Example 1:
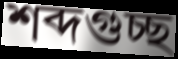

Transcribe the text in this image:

শব্দগুচ্ছ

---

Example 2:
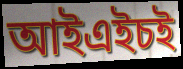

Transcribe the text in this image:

আইএইচই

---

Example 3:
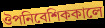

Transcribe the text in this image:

ঔপনিবেশিককালে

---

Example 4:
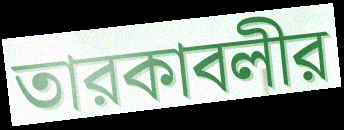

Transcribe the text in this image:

তারকাবলীর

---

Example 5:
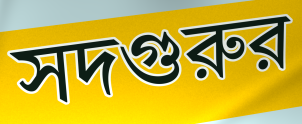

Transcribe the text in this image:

সদগুরুর